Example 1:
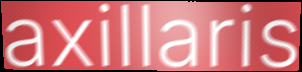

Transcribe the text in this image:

axillaris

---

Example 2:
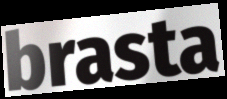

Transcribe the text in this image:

brasta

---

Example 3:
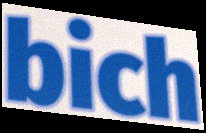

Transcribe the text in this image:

bich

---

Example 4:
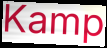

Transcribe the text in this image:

Kamp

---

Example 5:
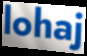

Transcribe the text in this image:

lohaj